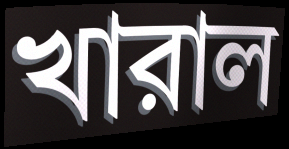
খারাল